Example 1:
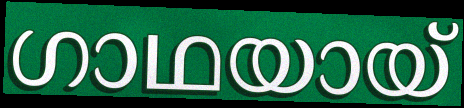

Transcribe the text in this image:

ഗാഥയായ്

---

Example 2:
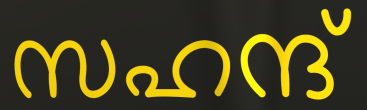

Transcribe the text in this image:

സഹന്ദ്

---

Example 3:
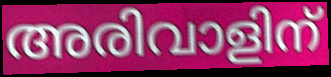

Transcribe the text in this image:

അരിവാളിന്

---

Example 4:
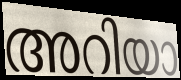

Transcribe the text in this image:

അറിയാ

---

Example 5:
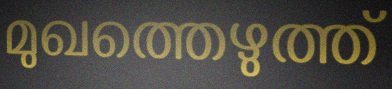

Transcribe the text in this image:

മുഖത്തെഴുത്ത്